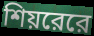
শিয়রেরে